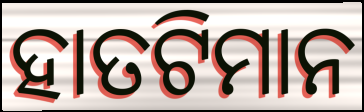
ହାତଟିମାନ